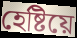
হেষ্টিয়ে